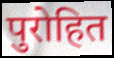
पुरोहित